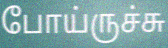
போய்ருச்சு